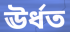
ঊৰ্ধত